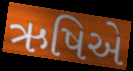
ઋષિએ